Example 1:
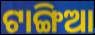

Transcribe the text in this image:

ଟାଙ୍ଗିଆ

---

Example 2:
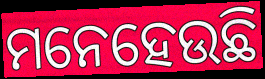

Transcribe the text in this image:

ମନେହେଉଛି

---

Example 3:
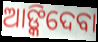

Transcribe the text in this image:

ଆଙ୍କିଦେବା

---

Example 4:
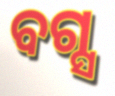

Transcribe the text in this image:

ବଗ୍ସ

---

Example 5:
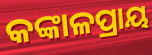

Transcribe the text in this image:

କଙ୍କାଳପ୍ରାୟ